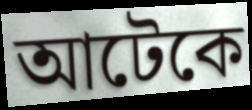
আটেকে